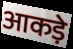
आकड़े